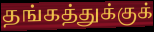
தங்கத்துக்குக்